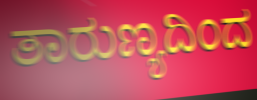
ತಾರುಣ್ಯದಿಂದ